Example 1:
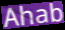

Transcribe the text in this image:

Ahab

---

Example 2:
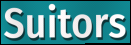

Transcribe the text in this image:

Suitors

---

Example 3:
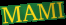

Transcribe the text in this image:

MAMI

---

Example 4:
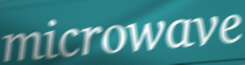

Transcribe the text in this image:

microwave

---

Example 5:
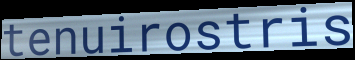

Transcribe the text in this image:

tenuirostris